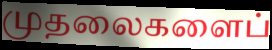
முதலைகளைப்